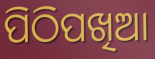
ପିଠିପଖିଆ